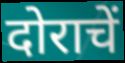
दोराचें